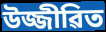
উজ্জীৱিত